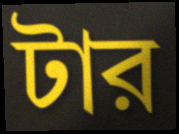
টার